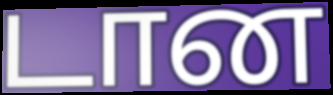
டான